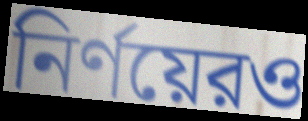
নির্ণয়েরও